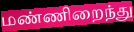
மண்ணிறைந்து